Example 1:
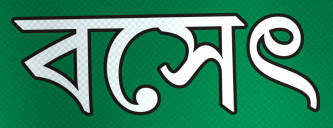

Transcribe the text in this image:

বসেৎ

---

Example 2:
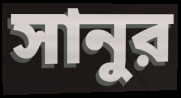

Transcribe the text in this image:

সানুর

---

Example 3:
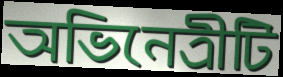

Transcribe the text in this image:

অভিনেত্রীটি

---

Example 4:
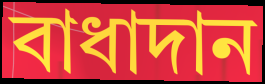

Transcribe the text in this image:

বাধাদান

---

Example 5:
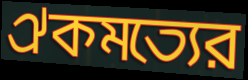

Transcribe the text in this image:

ঐকমত্যের